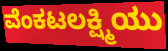
ವೆಂಕಟಲಕ್ಷ್ಮಿಯು